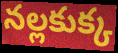
నల్లకుక్క